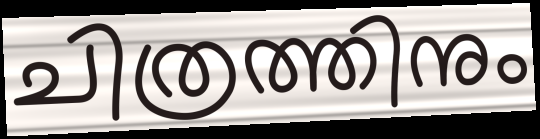
ചിത്രത്തിനും